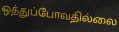
ஒத்துப்போவதில்லை